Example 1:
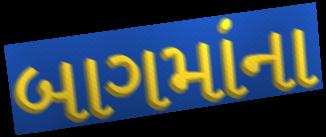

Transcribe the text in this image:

બાગમાંના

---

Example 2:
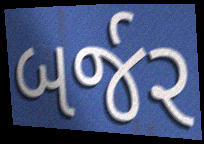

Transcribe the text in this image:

બર્જર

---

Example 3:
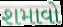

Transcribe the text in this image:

શમાવો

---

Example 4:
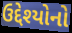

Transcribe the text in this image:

ઉદ્દેશ્યોનો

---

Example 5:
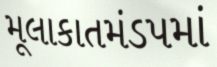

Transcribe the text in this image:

મૂલાકાતમંડપમાં